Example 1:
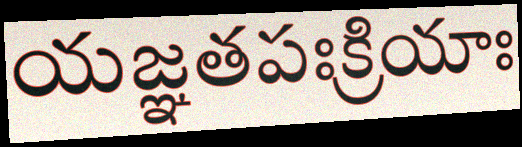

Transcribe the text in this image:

యజ్ఞతపఃక్రియాః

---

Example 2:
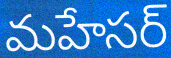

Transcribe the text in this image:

మహేసర్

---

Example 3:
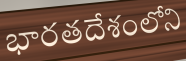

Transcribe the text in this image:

భారతదేశంలోని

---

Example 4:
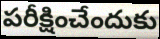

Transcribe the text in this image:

పరీక్షించేందుకు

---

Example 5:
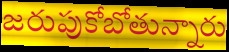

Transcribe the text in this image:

జరుపుకోబోతున్నారు